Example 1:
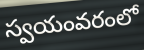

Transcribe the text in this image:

స్వయంవరంలో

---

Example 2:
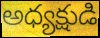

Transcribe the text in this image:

అధ్యక్షుడి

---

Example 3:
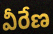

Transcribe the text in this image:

వీరేణ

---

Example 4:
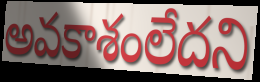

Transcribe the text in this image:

అవకాశంలేదని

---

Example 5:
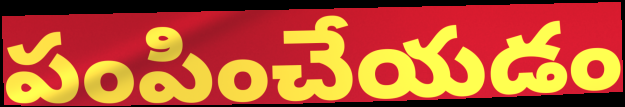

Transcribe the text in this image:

పంపించేయడం